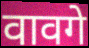
वावगे